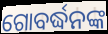
ଗୋବର୍ଦ୍ଧନଙ୍କ